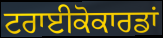
ਟਰਾਈਕੋਕਾਰਡਾਂ